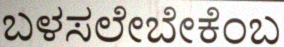
ಬಳಸಲೇಬೇಕೆಂಬ